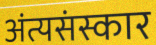
अंत्यसंस्कार